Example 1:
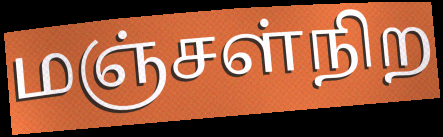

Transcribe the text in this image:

மஞ்சள்நிற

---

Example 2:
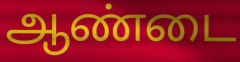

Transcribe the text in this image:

ஆண்டை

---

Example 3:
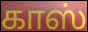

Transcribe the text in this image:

காஸ்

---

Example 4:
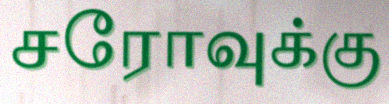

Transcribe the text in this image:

சரோவுக்கு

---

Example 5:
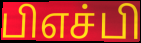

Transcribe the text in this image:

பிஎச்பி